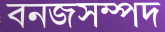
বনজসম্পদ